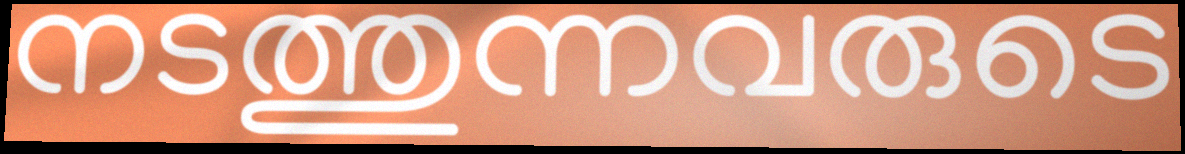
നടത്തുന്നവരുടെ